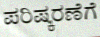
ಪರಿಷ್ಕರಣೆಗೆ